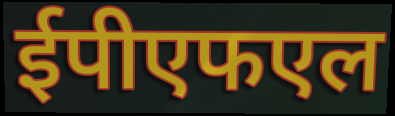
ईपीएफएल